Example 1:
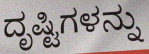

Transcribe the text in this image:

ದೃಷ್ಟಿಗಳನ್ನು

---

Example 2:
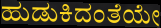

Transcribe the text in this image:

ಹುಡುಕಿದಂತೆಯೇ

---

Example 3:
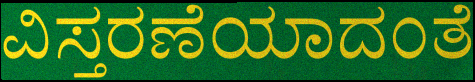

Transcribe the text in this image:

ವಿಸ್ತರಣೆಯಾದಂತೆ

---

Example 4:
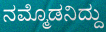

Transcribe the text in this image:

ನಮ್ಮೊಡನಿದ್ದು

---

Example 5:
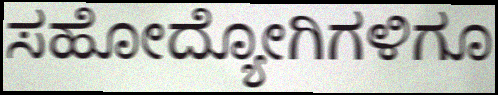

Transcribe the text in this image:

ಸಹೋದ್ಯೋಗಿಗಳಿಗೂ